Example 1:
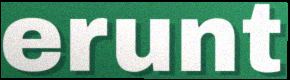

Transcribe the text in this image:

erunt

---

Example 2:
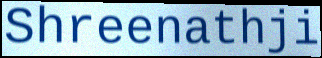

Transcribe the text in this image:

Shreenathji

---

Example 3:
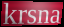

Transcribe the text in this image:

krsna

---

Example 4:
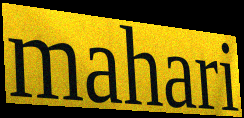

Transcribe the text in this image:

mahari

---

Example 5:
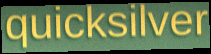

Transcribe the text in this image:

quicksilver